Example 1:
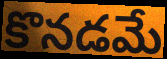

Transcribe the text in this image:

కొనడమే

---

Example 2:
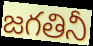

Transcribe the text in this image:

జగతినీ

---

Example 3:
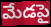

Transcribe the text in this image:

మేడపై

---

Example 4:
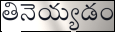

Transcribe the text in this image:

తినెయ్యడం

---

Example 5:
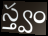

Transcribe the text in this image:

స్త్వం